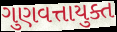
ગુણવત્તાયુક્ત